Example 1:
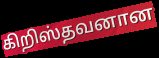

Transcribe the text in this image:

கிறிஸ்தவனான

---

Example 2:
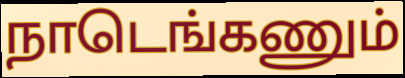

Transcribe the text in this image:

நாடெங்கணும்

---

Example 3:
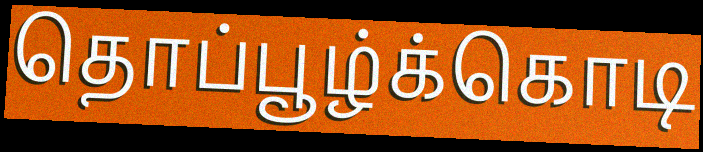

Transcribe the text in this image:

தொப்பூழ்க்கொடி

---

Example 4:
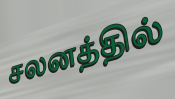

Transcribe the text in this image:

சலனத்தில்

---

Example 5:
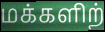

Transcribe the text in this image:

மக்களிற்